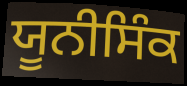
ਯੂਨੀਸਿੰਕ